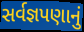
સર્વજ્ઞપણાનું